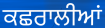
ਕਛਰਾਲੀਆਂ